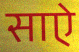
साऐ